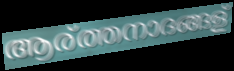
ആര്ത്തനാദങ്ങള്